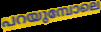
പറയുമ്പോലെ